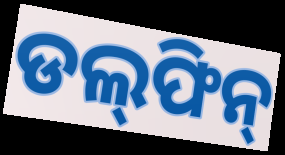
ଡଲ୍‍ଫିନ୍